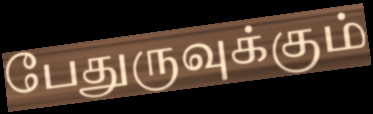
பேதுருவுக்கும்